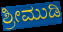
ಶ್ರೀಮುಡಿ